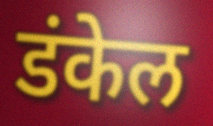
डंकेल